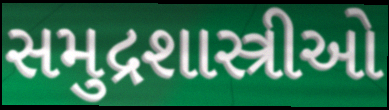
સમુદ્રશાસ્ત્રીઓ